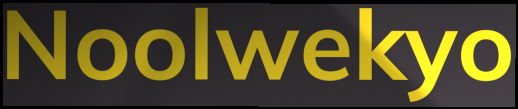
Noolwekyo